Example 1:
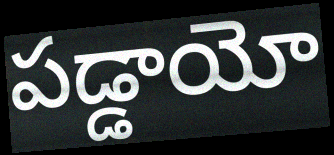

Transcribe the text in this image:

పడ్డాయో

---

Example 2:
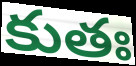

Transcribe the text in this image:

కుతః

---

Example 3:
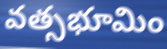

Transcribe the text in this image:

వత్సభూమిం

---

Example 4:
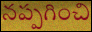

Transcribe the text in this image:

నప్పగించి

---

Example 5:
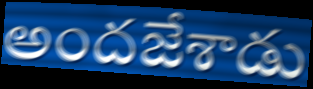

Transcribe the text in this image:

అందజేశాడు